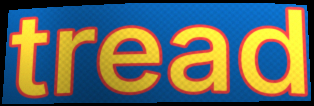
tread